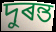
দুৰন্ত